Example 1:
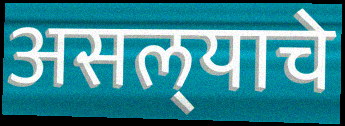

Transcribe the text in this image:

असल्याचे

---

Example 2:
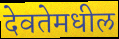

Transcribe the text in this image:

देवतेमधील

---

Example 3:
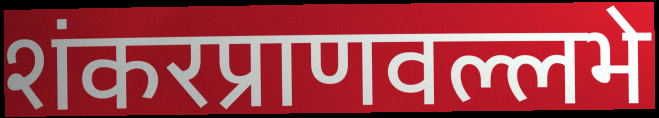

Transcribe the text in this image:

शंकरप्राणवल्लभे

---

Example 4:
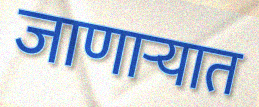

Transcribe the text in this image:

जाणाऱ्यात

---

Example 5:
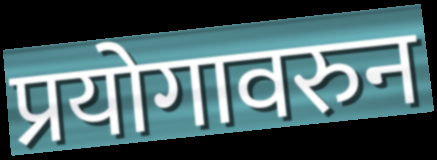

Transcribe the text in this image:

प्रयोगावरुन